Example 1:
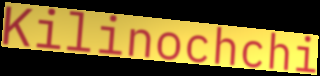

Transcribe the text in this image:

Kilinochchi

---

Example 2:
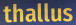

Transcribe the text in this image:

thallus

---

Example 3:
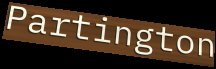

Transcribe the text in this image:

Partington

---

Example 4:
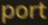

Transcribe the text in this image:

port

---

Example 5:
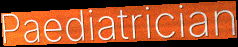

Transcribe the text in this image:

Paediatrician